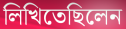
লিখিতেছিলেন